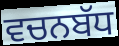
ਵਚਨਬੱਧ